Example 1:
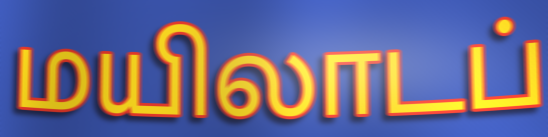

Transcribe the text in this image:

மயிலாடப்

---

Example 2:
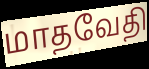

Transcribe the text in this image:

மாதவேதி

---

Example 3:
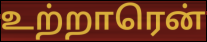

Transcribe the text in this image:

உற்றாரென்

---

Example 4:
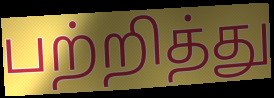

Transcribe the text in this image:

பற்றித்து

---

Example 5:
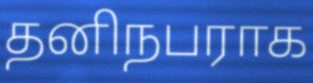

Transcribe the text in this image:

தனிநபராக